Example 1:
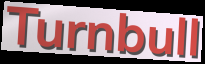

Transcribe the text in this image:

Turnbull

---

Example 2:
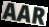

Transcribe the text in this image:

AAR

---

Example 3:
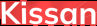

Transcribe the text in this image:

Kissan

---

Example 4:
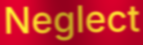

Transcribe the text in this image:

Neglect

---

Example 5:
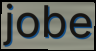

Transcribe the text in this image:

jobe